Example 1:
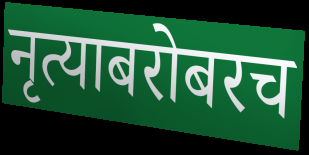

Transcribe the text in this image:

नृत्याबरोबरच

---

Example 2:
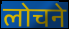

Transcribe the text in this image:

लोचने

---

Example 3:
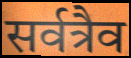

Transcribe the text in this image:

सर्वत्रैव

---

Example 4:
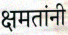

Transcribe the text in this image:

क्षमतांनी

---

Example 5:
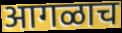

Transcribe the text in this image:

आगळाच